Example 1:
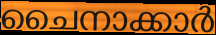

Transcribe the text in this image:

ചൈനാക്കാർ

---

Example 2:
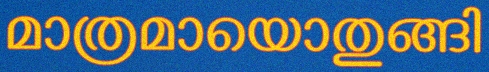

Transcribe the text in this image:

മാത്രമായൊതുങ്ങി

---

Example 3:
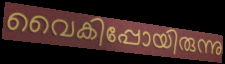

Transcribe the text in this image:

വൈകിപ്പോയിരുന്നു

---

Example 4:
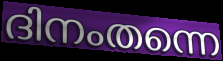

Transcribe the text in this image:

ദിനംതന്നെ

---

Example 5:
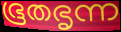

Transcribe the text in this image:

ഭൂതഭൃന്ന